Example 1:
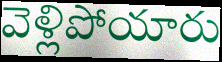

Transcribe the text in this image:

వెళ్లిపోయారు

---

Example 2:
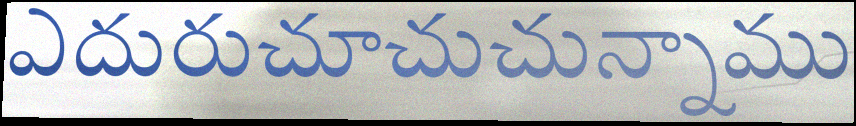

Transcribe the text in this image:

ఎదురుచూచుచున్నాము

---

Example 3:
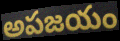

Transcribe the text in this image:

అపజయం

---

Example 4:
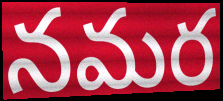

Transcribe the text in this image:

నమర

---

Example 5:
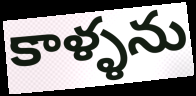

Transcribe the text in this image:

కాళ్ళను